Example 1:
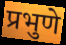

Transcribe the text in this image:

प्रभुणे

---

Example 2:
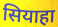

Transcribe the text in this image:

सियाहा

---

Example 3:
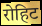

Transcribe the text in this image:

रोहिट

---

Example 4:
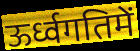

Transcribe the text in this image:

ऊर्ध्वगतिमें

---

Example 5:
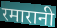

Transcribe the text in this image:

रमारानी